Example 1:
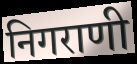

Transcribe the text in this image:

निगराणी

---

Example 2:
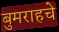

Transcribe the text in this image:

बुमराहचे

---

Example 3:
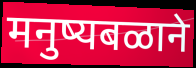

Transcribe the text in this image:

मनुष्यबळाने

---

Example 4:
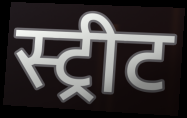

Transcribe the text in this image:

स्ट्रीट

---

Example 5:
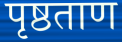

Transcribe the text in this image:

पृष्ठताण